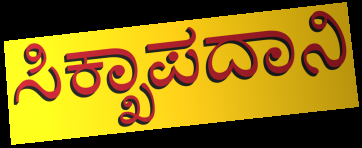
ಸಿಕ್ಖಾಪದಾನಿ